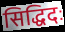
सिद्धिदः